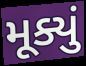
મૂક્યું